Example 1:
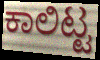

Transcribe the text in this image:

ಕಾಲಿಟ್ಟ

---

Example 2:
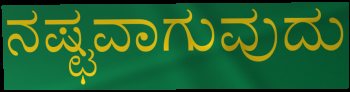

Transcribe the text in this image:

ನಷ್ಟವಾಗುವುದು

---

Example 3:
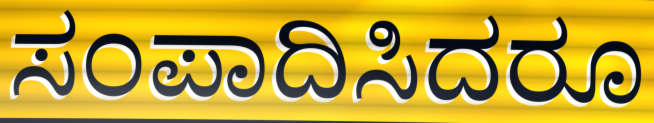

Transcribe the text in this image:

ಸಂಪಾದಿಸಿದರೂ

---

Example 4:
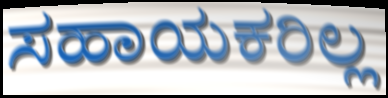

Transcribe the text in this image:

ಸಹಾಯಕರಿಲ್ಲ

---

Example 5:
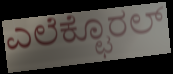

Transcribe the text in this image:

ಎಲೆಕ್ಟೊರಲ್